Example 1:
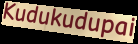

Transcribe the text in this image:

Kudukudupai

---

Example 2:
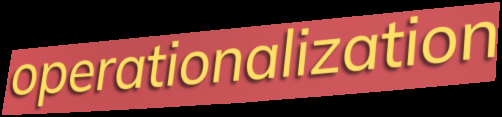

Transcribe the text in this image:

operationalization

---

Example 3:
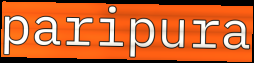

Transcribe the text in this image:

paripura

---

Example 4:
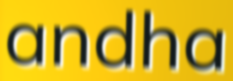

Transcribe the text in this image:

andha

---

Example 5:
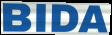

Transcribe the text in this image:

BIDA